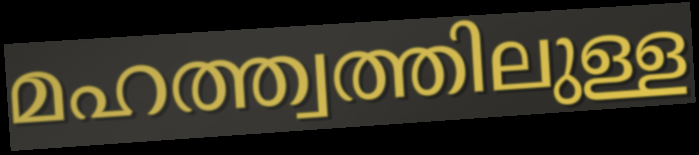
മഹത്ത്വത്തിലുള്ള